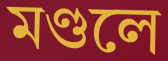
মণ্ডলে